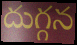
దుగ్గన